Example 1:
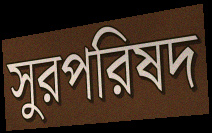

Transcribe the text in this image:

সুরপরিষদ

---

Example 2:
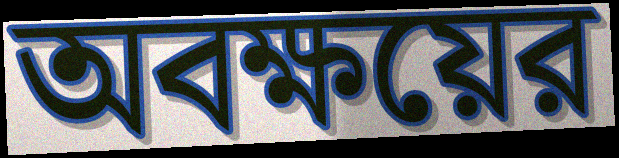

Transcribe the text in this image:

অবক্ষয়ের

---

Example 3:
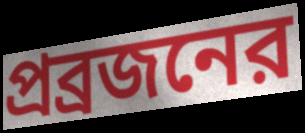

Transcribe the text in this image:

প্রব্রজনের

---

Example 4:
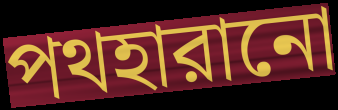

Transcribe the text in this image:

পথহারানো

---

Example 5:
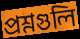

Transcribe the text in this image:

প্রশ্নগুলি